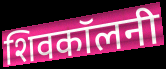
शिवकॉलनी